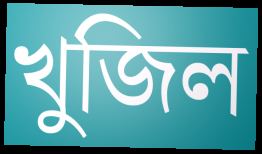
খুজিল